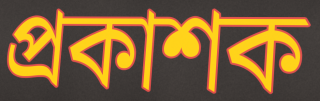
প্রকাশক